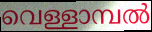
വെള്ളാമ്പൽ